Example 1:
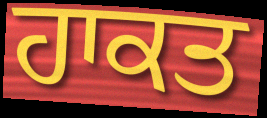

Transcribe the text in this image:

ਹਾਕਤ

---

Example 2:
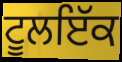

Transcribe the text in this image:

ਟੂਲਇੱਕ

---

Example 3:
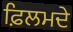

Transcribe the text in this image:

ਫ਼ਿਲਮਦੇ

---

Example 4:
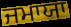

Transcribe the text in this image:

ਜਮਾਯਾ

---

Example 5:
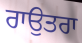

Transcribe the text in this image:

ਰਾਉਤਰਾ